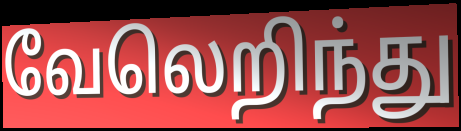
வேலெறிந்து